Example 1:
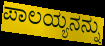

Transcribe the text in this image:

ಪಾಲಯ್ಯನನ್ನು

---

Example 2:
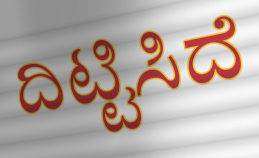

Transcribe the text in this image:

ದಿಟ್ಟಿಸಿದೆ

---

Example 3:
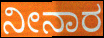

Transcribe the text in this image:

ನೀನಾರ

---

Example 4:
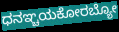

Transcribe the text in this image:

ಧನಞ್ಚಯಕೋರಬ್ಯೋ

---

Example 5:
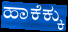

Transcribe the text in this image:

ಹಾಕೆಕ್ಕು